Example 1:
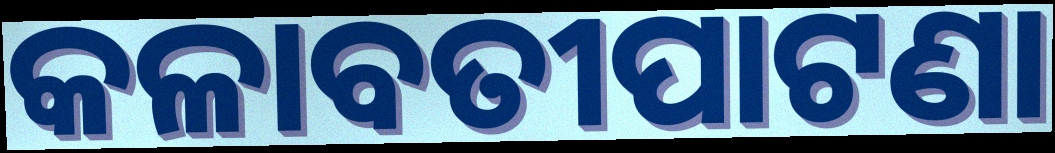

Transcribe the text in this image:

କଳାବତୀପାଟଣା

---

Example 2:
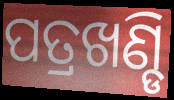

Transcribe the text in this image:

ପତ୍ରଖଣ୍ଡି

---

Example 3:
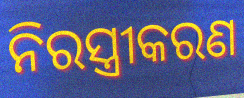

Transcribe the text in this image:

ନିରସ୍ତ୍ରୀକରଣ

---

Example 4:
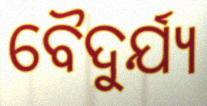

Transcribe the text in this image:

ବୈଦୁର୍ଯ୍ୟ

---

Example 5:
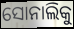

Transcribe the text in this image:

ସୋନାଲିକୁ